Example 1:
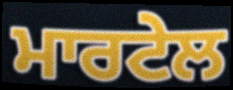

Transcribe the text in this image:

ਮਾਰਟੇਲ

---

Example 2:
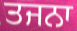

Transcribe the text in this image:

ਤਜਨਾ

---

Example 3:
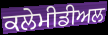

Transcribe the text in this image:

ਕਲੇਮੀਡੀਅਲ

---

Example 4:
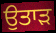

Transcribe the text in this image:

ਉਤਾਡ਼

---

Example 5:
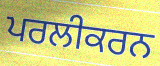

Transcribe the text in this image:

ਪਰਲੀਕਰਨ